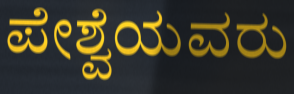
ಪೇಶ್ವೆಯವರು